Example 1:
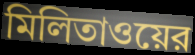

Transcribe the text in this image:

মিলিতাওয়ের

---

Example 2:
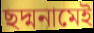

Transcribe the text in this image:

ছদ্মনামেই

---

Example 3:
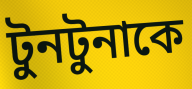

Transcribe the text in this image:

টুনটুনাকে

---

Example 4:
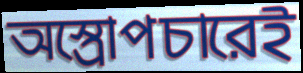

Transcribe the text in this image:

অস্ত্রোপচারেই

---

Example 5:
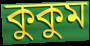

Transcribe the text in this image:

কুকুম